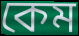
কেম